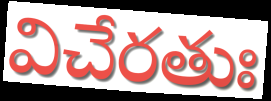
విచేరతుః